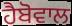
ਹੈਬੋਵਾਲ